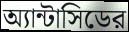
অ্যান্টাসিডের